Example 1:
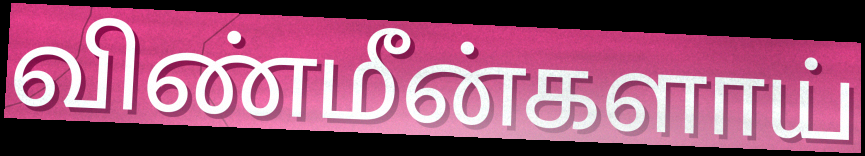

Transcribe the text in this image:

விண்மீன்களாய்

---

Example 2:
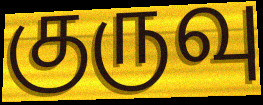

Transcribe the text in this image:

குருவு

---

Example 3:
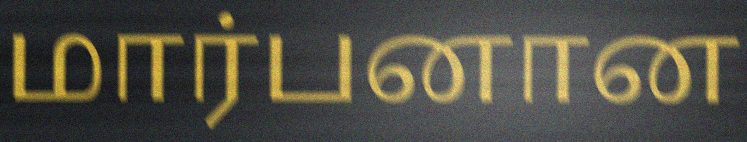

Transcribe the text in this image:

மார்பனான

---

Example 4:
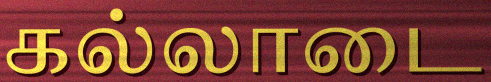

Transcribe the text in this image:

கல்லாடை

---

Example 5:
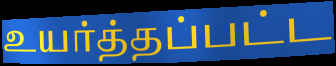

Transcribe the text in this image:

உயர்த்தப்பட்ட